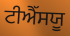
ਟੀਐੱਸਯੂ